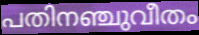
പതിനഞ്ചുവീതം